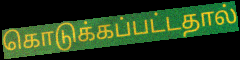
கொடுக்கப்பட்டதால்